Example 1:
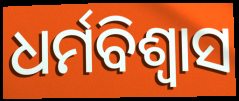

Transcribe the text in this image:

ଧର୍ମବିଶ୍ଵାସ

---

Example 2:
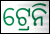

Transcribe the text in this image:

ଟ୍ରେନି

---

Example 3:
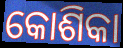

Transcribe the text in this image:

କୋଶିକା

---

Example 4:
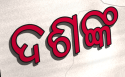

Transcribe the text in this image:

ଦଶଙ୍କ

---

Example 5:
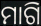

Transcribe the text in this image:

ମାଗି